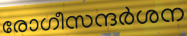
രോഗീസന്ദർശന